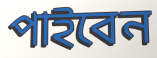
পাইবেন